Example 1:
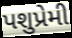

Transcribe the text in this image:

પશુપ્રેમી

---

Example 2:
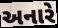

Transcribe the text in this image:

અનારે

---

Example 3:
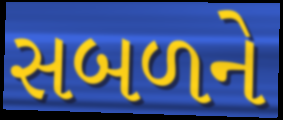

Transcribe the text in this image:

સબળને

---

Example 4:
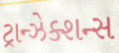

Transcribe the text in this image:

ટ્રાન્ઝેક્શન્સ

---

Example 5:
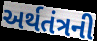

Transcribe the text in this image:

અર્થતંત્રની